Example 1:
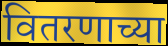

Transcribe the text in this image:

वितरणाच्या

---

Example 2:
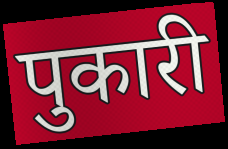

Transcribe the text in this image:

पुकारी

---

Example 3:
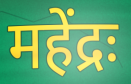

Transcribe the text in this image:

महेंद्रः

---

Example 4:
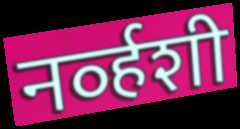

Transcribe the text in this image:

नर्व्हशी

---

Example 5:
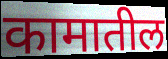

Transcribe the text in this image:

कामातील